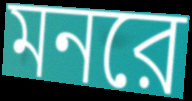
মনরে